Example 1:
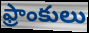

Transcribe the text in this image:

ఫ్రాంకులు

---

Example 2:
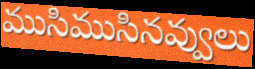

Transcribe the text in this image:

ముసిముసినవ్వులు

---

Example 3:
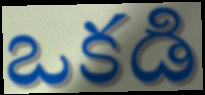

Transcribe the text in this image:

ఒకడి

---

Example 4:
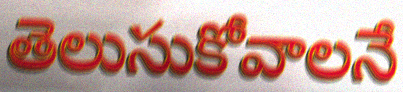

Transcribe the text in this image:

తెలుసుకోవాలనే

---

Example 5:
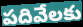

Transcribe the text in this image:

పదివేలకు